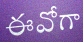
ఈవోగా